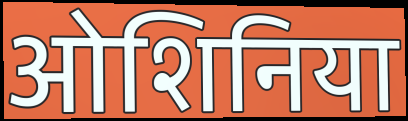
ओशिनिया